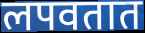
लपवतात